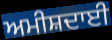
ਅਮੀਸ਼ਦਾਈ